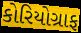
કોરિયોગ્રાફ